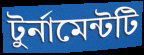
টুর্নামেন্টটি